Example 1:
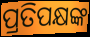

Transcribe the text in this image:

ପ୍ରତିପକ୍ଷଙ୍କ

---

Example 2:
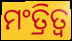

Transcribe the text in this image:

ମଂତ୍ରିତ୍ୱ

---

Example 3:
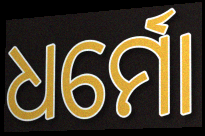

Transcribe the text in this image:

ଧର୍ମୋ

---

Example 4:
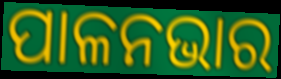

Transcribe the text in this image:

ପାଳନଭାର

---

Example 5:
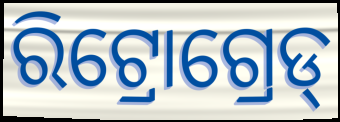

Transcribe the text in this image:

ରିଟ୍ରୋଗ୍ରେଡ୍